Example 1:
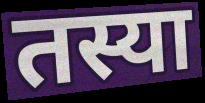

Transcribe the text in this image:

तस्या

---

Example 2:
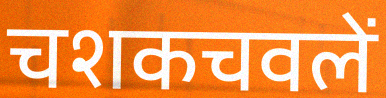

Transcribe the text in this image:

चशकचवलें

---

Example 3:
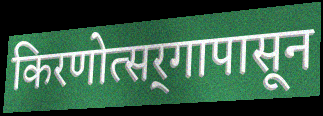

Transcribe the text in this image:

किरणोत्सर्गापासून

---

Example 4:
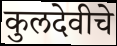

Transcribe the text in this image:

कुलदेवीचे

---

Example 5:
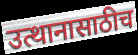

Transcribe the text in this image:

उत्थानासाठीच